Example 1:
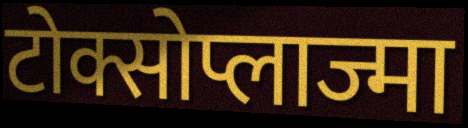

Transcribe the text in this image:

टोक्सोप्लाज्मा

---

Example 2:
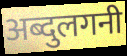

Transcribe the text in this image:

अब्दुलगनी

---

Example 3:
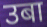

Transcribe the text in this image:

उबा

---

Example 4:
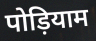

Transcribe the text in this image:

पोड़ियाम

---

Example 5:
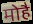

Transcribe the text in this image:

मोहै